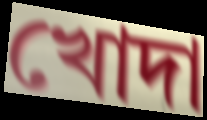
খোদা